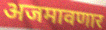
अजमावणार